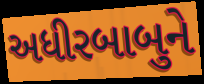
અધીરબાબુને